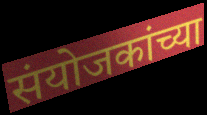
संयोजकांच्या